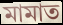
মামাত